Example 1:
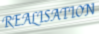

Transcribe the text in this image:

REALISATION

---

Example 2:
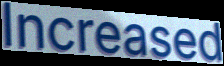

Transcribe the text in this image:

Increased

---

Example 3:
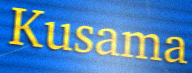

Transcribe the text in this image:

Kusama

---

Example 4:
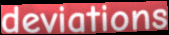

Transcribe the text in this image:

deviations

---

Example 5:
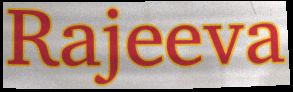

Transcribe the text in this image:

Rajeeva